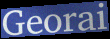
Georai